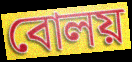
বোলয়